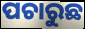
ପଚାରୁଛ